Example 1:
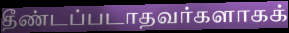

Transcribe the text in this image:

தீண்டப்படாதவர்களாகக்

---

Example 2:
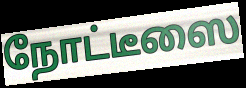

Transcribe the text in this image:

நோட்டீஸை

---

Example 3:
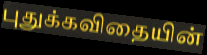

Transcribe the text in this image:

புதுக்கவிதையின்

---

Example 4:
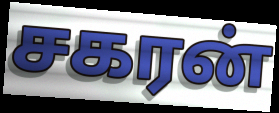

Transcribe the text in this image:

சகரன்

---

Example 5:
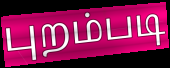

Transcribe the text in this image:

புறம்படி